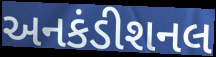
અનકંડીશનલ